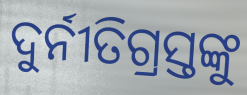
ଦୁର୍ନୀତିଗ୍ରସ୍ତଙ୍କୁ